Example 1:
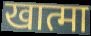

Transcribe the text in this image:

खात्मा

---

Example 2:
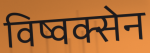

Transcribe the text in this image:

विष्वक्सेन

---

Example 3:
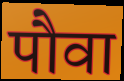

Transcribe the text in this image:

पौवा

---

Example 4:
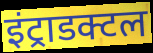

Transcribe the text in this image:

इंट्राडक्टल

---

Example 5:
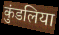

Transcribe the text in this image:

कुंडलिया